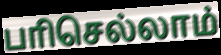
பரிசெல்லாம்